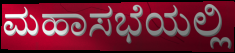
ಮಹಾಸಭೆಯಲ್ಲಿ